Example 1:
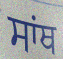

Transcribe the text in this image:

ਸਾਂਥ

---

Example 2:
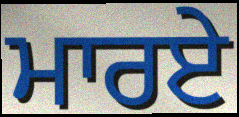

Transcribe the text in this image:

ਮਾਰਏ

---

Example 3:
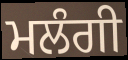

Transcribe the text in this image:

ਮਲੰਗੀ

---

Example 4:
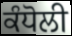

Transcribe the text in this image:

ਕੰਧੋਲੀ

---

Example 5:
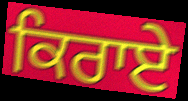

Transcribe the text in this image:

ਕਿਰਾਏ